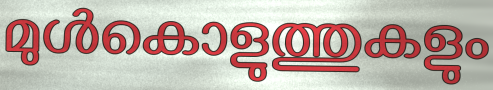
മുൾകൊളുത്തുകളും